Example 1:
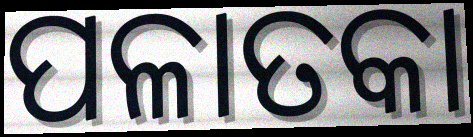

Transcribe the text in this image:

ପଳାତକା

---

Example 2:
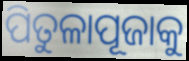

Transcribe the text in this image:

ପିତୁଳାପୂଜାକୁ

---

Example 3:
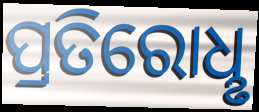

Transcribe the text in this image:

ପ୍ରତିରୋଧୢ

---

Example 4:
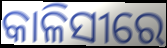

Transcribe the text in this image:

କାଳିସୀରେ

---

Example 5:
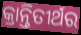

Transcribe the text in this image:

କ୍ରାନ୍ତିତୀର୍ଥର